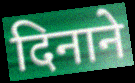
दिनाने